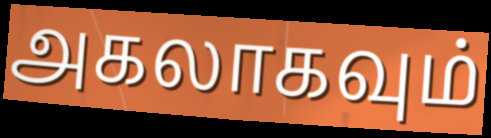
அகலாகவும்